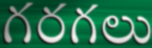
గరగలు